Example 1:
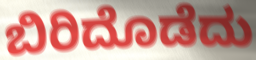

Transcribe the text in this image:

ಬಿರಿದೊಡೆದು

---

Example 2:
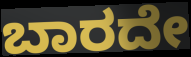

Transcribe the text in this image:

ಬಾರದೇ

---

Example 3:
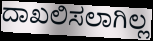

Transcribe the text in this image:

ದಾಖಲಿಸಲಾಗಿಲ್ಲ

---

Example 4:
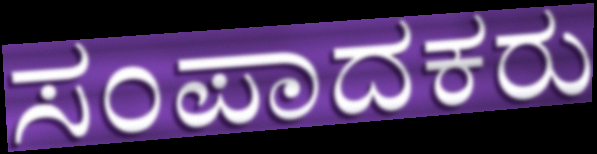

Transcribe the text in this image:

ಸಂಪಾದಕರು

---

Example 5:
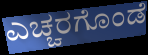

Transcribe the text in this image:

ಎಚ್ಚರಗೊಂಡೆ